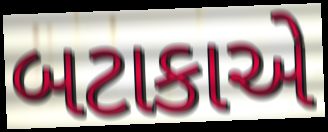
બટાકાએ